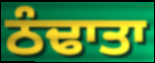
ਠੰਢਾਤਾ